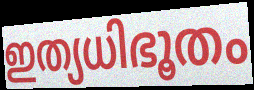
ഇത്യധിഭൂതം